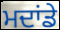
ਮਦਾਂਡੇ